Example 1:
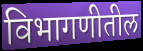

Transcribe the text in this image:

विभागणीतील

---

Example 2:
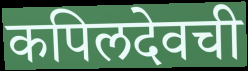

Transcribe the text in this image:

कपिलदेवची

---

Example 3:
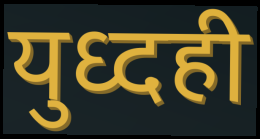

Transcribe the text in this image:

युध्दही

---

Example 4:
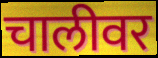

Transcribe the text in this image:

चालीवर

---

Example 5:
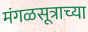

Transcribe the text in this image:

मंगळसूत्राच्या